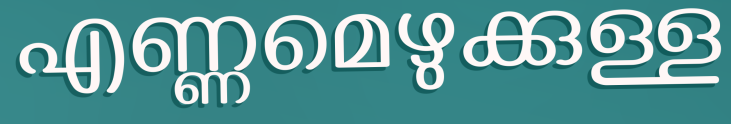
എണ്ണമെഴുക്കുള്ള